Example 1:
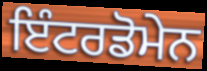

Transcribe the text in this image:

ਇੰਟਰਡੋਮੇਨ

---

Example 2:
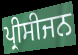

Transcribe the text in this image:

ਪ੍ਰੀਸੀਜਨ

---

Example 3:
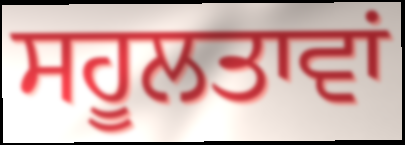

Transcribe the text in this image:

ਸਹੂਲਤਾਵਾਂ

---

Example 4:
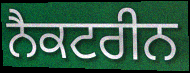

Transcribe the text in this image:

ਨੈਕਟਰੀਨ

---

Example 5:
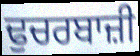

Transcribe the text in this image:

ਢੁਚਰਬਾਜ਼ੀ